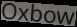
Oxbow